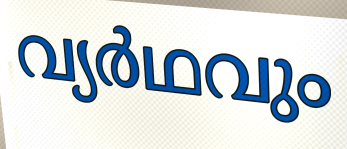
വ്യർഥവും